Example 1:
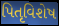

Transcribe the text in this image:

પિતૃવિશેષ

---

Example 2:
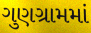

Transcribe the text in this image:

ગુણગ્રામમાં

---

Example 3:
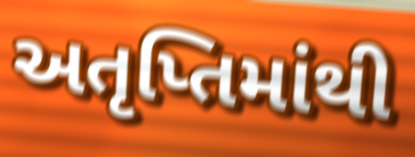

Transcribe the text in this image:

અતૃપ્તિમાંથી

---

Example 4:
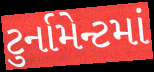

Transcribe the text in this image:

ટુર્નામેન્ટમાં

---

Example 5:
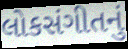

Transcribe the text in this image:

લોકસંગીતનું